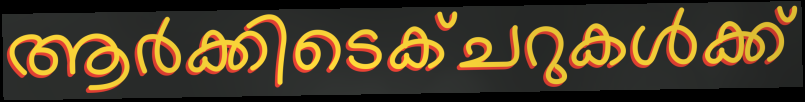
ആർക്കിടെക്ചറുകൾക്ക്